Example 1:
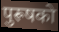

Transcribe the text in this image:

पुरूषको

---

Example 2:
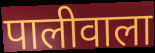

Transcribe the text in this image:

पालीवाला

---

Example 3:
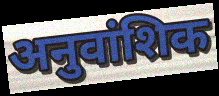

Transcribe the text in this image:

अनुवांशिक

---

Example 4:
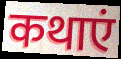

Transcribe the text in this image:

कथाएं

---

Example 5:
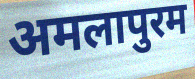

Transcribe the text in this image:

अमलापुरम